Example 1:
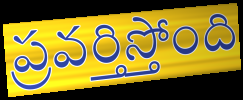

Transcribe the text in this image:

ప్రవర్తిస్తోంది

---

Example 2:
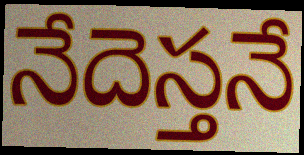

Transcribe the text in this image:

నేదెస్తనే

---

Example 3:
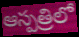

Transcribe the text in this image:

ఆస్పత్రిలో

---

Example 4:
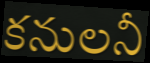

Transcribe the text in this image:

కనులనీ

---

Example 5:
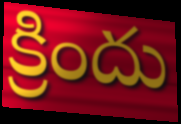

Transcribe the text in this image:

క్రిందు